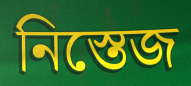
নিস্তেজ